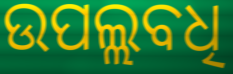
ଉପଲ୍ଲବଧି